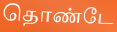
தொண்டே